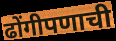
ढोंगीपणाची